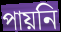
পায়নি